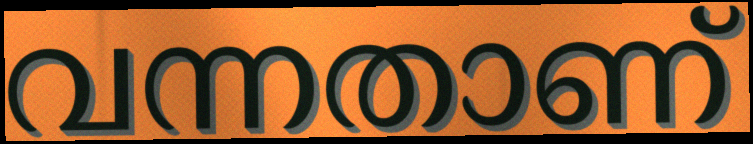
വന്നതാണ്